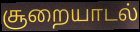
சூறையாடல்